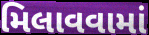
મિલાવવામાં